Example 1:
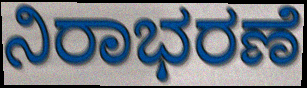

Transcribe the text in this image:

ನಿರಾಭರಣೆ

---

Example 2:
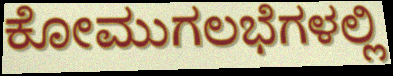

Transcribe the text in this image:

ಕೋಮುಗಲಭೆಗಳಲ್ಲಿ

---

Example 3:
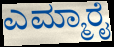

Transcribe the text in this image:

ಎಮ್ಮಾರೈ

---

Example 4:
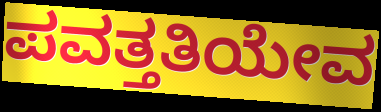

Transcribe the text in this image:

ಪವತ್ತತಿಯೇವ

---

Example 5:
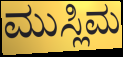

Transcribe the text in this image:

ಮುಸ್ಲಿಮ